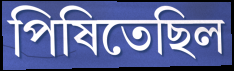
পিষিতেছিল